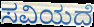
ಸವಿಯದೆ